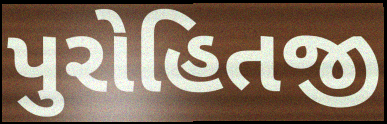
પુરોહિતજી